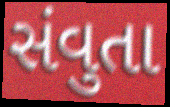
સંવુતા